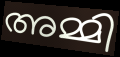
അമ്മി